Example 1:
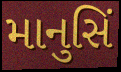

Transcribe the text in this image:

માનુસિં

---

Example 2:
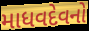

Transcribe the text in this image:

માધવદેવનો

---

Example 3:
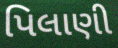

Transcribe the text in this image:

પિલાણી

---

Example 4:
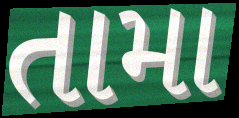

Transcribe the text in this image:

તામા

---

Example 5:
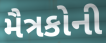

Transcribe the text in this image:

મૈત્રકોની